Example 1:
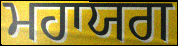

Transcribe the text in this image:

ਮਹਾਯਗ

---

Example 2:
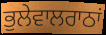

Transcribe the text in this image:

ਭੁਲੇਵਾਲਰਾਠਾਂ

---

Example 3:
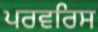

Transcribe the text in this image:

ਪਰਵਰਿਸ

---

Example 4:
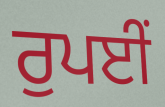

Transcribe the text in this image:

ਰੁਪਈਂ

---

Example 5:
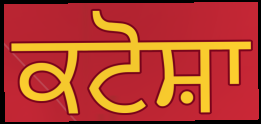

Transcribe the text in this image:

ਕਟੋਸ਼ਾ